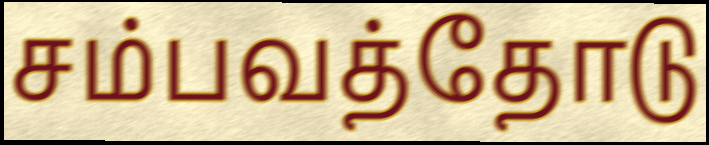
சம்பவத்தோடு